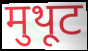
मुथूट